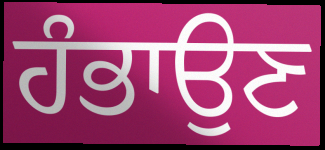
ਹੰਭਾਉਣ